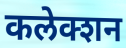
कलेक्शन